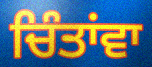
ਚਿੰਤਾਂਵਾ